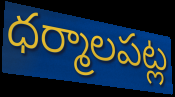
ధర్మాలపట్ల